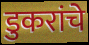
डुकरांचे